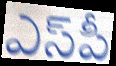
ఎస్‌పీ